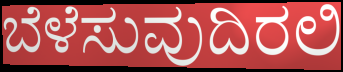
ಬೆಳೆಸುವುದಿರಲಿ